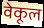
वेकूल